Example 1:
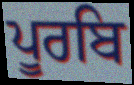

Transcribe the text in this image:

ਪੂਰਬਿ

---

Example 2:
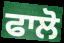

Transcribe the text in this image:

ਫਾਲੋ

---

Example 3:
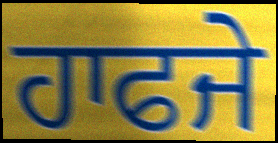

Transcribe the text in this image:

ਹਾਫਜੇ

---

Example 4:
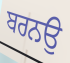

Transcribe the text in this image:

ਬਰਨਉ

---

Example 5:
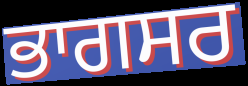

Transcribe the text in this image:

ਭਾਗਸਰ